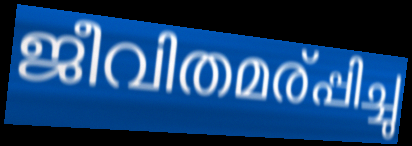
ജീവിതമര്പ്പിച്ചു